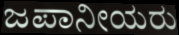
ಜಪಾನೀಯರು